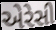
એરેસી